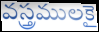
వస్త్రములకై